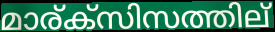
മാര്ക്സിസത്തില്